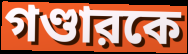
গণ্ডারকে